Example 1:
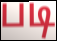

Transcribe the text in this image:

படி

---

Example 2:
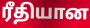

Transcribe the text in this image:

ரீதியான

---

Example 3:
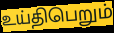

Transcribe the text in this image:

உய்திபெறும்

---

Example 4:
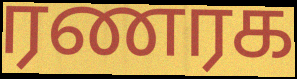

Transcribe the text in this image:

ரணரக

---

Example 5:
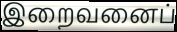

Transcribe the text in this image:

இறைவனைப்